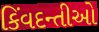
કિંવદન્તીઓ